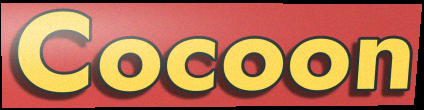
Cocoon